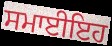
ਸਮਾਈਇਹ